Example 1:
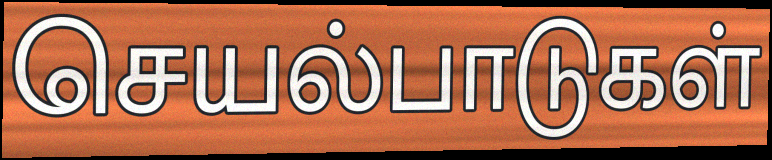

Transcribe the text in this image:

செயல்பாடுகள்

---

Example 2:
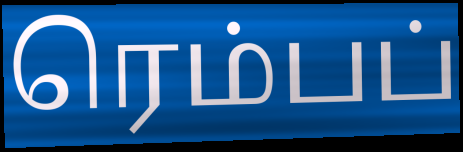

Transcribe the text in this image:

ரெம்பப்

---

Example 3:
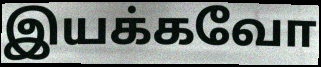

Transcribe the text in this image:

இயக்கவோ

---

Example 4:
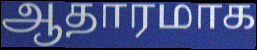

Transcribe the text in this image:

ஆதாரமாக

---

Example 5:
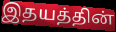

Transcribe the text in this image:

இதயத்தின்